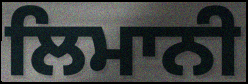
ਲਿਮਾਨੀ